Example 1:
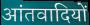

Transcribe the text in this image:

आंतवादियों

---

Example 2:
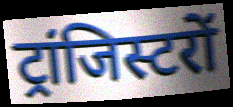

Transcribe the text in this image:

ट्रांजिस्टरों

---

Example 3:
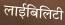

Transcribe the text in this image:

लाईबिलिटी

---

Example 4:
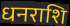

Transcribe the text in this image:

धनराशि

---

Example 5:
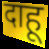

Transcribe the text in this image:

दाहू